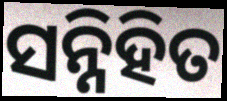
ସନ୍ନିହିତ